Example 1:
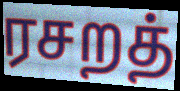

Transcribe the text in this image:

ரசறத்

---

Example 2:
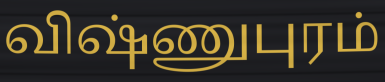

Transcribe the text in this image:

விஷ்ணுபுரம்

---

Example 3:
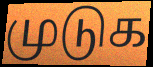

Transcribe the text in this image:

முடுக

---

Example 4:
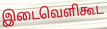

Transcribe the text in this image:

இடைவெளிகூட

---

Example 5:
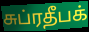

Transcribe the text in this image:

சுப்ரதீபக்